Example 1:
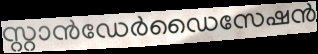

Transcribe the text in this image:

സ്റ്റാൻഡേർഡൈസേഷൻ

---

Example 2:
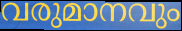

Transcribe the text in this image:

വരുമാനവും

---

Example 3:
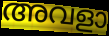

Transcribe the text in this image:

അവളാ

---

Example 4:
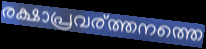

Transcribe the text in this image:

രക്ഷാപ്രവര്ത്തനത്തെ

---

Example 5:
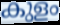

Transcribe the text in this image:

കുളം